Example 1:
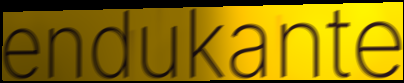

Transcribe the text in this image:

endukante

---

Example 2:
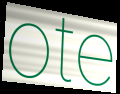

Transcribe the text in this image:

ote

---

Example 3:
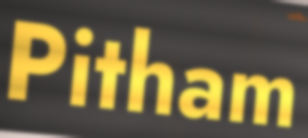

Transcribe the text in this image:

Pitham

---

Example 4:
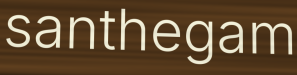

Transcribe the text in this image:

santhegam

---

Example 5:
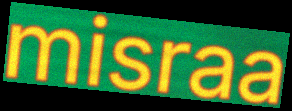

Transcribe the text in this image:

misraa